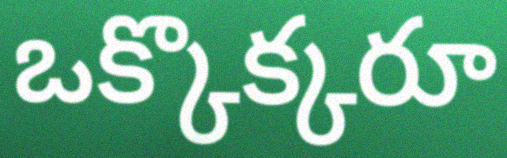
ఒక్కొక్కరూ